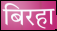
बिरहा